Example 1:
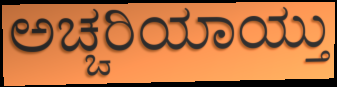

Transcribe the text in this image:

ಅಚ್ಚರಿಯಾಯ್ತು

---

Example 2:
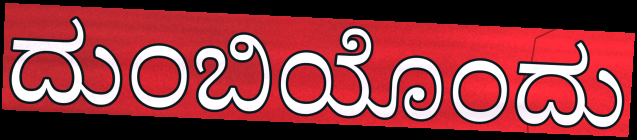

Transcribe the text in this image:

ದುಂಬಿಯೊಂದು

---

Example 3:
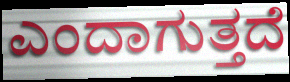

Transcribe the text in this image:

ಎಂದಾಗುತ್ತದೆ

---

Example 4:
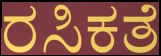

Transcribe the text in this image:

ರಸಿಕತೆ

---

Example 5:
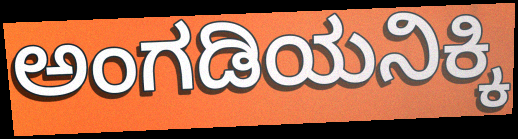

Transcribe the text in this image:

ಅಂಗಡಿಯನಿಕ್ಕಿ